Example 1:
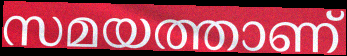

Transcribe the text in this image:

സമയത്താണ്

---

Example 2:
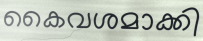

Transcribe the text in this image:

കൈവശമാക്കി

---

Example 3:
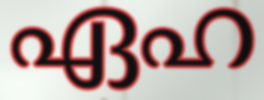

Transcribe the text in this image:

ഏഹ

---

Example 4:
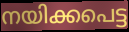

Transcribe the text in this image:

നയിക്കപെട്ട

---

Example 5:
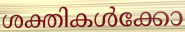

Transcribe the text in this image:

ശക്തികൾക്കോ